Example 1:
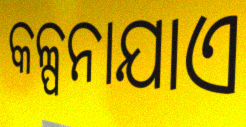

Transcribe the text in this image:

କଳ୍ପନାଯାଏ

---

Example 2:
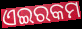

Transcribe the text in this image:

ଏଇରକମ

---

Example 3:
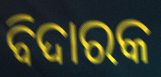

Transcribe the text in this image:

ବିଦାରକ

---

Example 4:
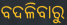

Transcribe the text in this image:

ବଦଳିବାରୁ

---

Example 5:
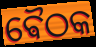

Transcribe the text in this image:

ଵୈଠକ